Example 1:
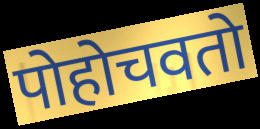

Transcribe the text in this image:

पोहोचवतो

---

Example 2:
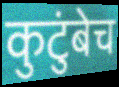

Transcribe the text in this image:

कुटुंबेच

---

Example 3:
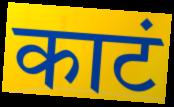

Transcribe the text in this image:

काटं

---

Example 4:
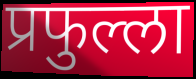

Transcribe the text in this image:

प्रफुल्ला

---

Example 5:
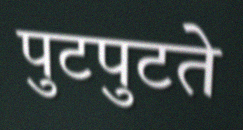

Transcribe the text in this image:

पुटपुटते